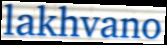
lakhvano